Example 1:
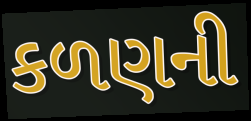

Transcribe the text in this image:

કળણની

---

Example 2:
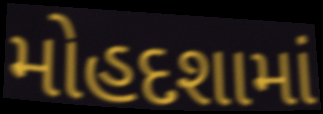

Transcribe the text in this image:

મોહદશામાં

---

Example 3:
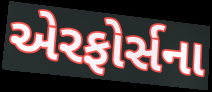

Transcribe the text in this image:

એરફોર્સના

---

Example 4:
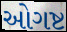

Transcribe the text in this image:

ઓગષ્ટ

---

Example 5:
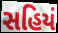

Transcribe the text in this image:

સહિયં